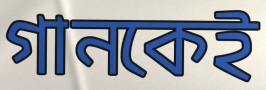
গানকেই